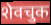
शेवचुक